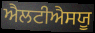
ਐਲਟੀਐਸਯੂ